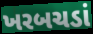
ખરબચડાં